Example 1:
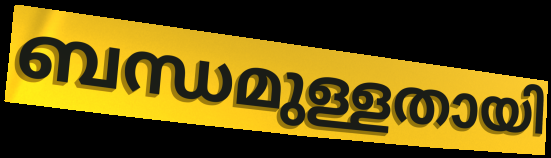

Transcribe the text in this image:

ബന്ധമുള്ളതായി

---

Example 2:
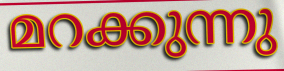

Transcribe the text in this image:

മറക്കുന്നു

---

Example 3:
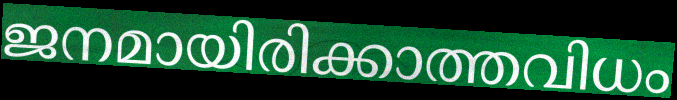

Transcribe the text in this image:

ജനമായിരിക്കാത്തവിധം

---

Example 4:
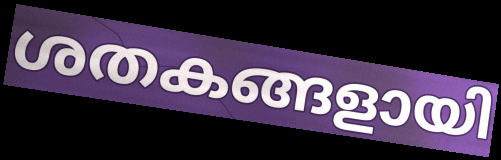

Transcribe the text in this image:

ശതകങ്ങളായി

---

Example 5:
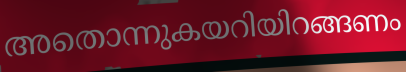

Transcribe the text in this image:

അതൊന്നുകയറിയിറങ്ങണം